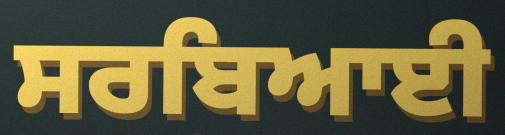
ਸਰਬਿਆਈ